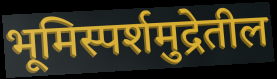
भूमिस्पर्शमुद्रेतील